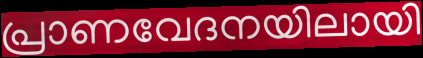
പ്രാണവേദനയിലായി